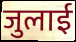
जुलाई